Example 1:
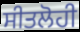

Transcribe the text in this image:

ਸੀਤਲੋਹੀ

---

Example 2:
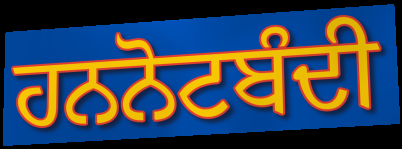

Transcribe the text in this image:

ਹਨਨੋਟਬੰਦੀ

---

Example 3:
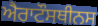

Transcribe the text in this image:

ਐਰਾਟੌਸਥੀਨਸ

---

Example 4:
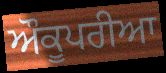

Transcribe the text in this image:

ਔਕੂਪਰੀਆ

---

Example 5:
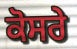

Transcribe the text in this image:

ਕੋਸਰੇ